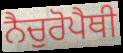
ਨੈਚੁਰੋਪੈਥੀ